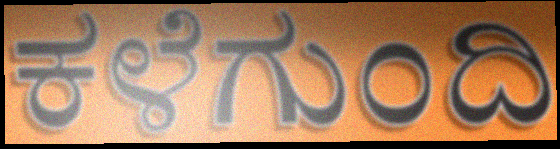
ಕಳೆಗುಂದಿ